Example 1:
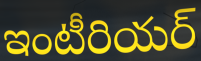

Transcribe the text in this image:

ఇంటీరియర్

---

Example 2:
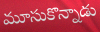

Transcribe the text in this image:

మూసుకొన్నాడు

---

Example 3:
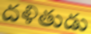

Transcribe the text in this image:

దళితుడు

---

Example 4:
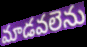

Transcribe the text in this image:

మాడవలెను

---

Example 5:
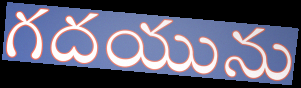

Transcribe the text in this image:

గదయును